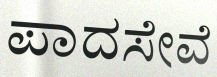
ಪಾದಸೇವೆ